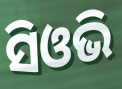
ସିଓଭି